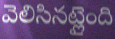
వెలిసినట్లైంది